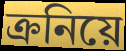
ক্রনিয়ে